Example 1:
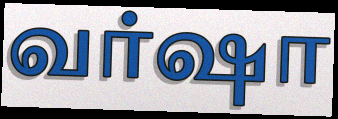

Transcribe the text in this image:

வர்ஷா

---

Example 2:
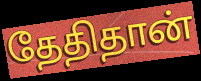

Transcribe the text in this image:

தேதிதான்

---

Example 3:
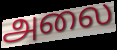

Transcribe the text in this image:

அலை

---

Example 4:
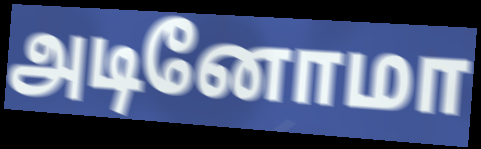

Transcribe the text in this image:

அடினோமா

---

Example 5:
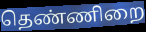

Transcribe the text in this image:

தெண்ணிறை